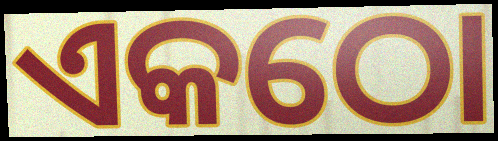
ଏକଠୋ